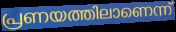
പ്രണയത്തിലാണെന്ന്